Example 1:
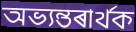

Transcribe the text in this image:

অভ্যন্তৰাৰ্থক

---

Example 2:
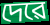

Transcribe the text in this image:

দেৱে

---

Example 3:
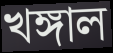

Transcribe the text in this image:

খঙ্গাল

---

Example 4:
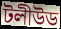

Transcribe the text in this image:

টলীউড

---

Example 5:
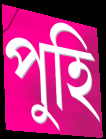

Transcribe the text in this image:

পুহি